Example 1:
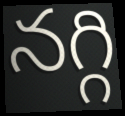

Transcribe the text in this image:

నగ్గి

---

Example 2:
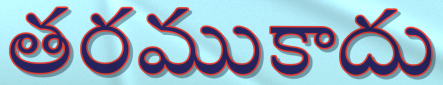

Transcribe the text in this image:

తరముకాదు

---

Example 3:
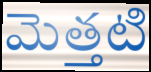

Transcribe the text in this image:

మెత్తటి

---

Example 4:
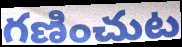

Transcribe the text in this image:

గణించుట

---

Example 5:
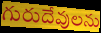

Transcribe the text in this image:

గురుదేవులను